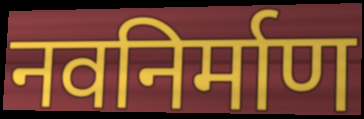
नवनिर्माण